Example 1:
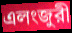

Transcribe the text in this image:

এলংজুরী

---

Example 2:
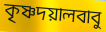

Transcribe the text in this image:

কৃষ্ণদয়ালবাবু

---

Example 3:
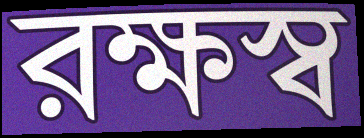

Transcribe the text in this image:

রক্ষস্ব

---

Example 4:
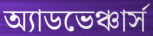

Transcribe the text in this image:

অ্যাডভেঞ্চার্স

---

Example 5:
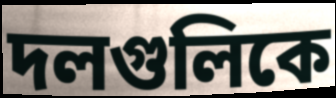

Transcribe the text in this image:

দলগুলিকে